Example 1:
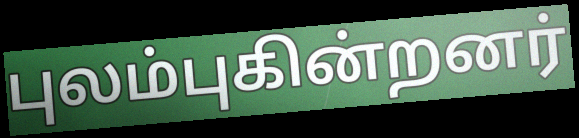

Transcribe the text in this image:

புலம்புகின்றனர்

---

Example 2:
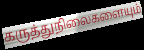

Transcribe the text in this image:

கருத்துநிலைகளையும்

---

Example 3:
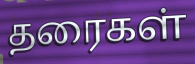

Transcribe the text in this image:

தரைகள்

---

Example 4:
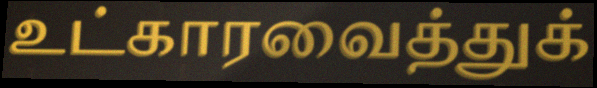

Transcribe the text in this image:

உட்காரவைத்துக்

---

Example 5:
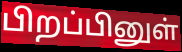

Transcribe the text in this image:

பிறப்பினுள்